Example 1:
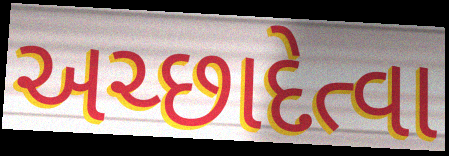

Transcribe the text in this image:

અચ્છાદેત્વા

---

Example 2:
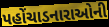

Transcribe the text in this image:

પહોંચાડનારાઓની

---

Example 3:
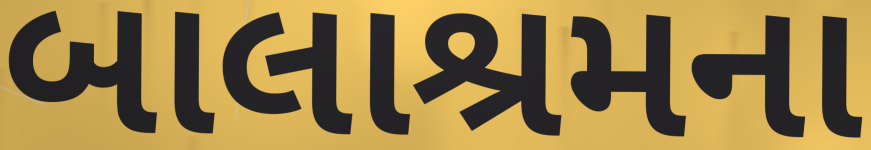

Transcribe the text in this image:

બાલાશ્રમના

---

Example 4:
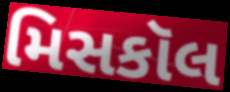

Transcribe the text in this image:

મિસકૉલ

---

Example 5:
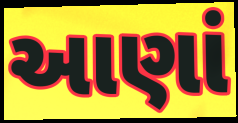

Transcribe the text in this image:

આણાં